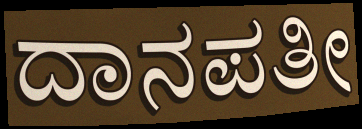
ದಾನಪತೀ